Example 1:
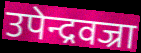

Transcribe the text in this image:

उपेन्द्रवज्रा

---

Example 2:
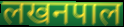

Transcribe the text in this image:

लखनपाल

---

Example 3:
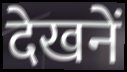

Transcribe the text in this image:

देखनें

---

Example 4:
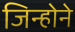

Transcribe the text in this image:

जिन्‍होने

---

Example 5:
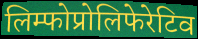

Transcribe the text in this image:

लिम्फोप्रोलिफेरेटिव